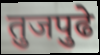
तुजपुढे